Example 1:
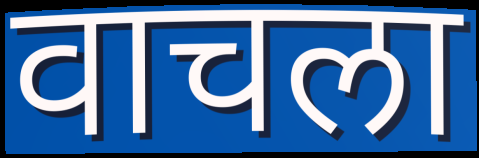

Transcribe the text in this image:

वाचला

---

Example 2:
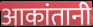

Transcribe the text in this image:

आकांतानी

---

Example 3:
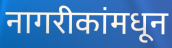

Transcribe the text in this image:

नागरीकांमधून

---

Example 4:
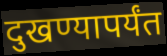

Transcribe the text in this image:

दुखण्यापर्यंत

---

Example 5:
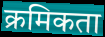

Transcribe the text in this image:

क्रमिकता